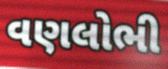
વણલોભી